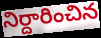
నిర్దారించిన